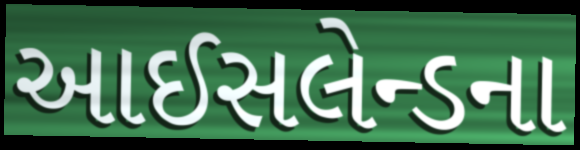
આઈસલેન્ડના